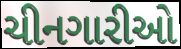
ચીનગારીઓ